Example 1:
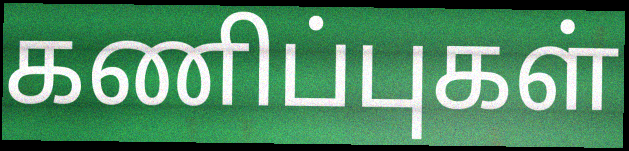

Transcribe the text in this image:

கணிப்புகள்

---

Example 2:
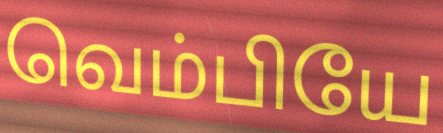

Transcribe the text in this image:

வெம்பியே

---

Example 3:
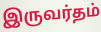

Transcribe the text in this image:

இருவர்தம்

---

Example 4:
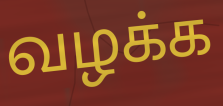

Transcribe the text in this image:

வழக்க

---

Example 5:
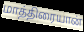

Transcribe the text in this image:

மாத்திரையான்